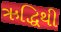
ઋદ્ધિથી